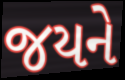
જયને